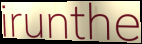
irunthe